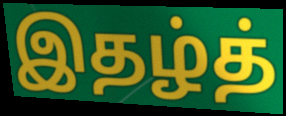
இதழ்த்